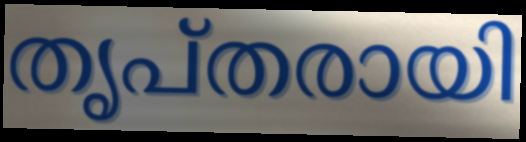
തൃപ്തരായി